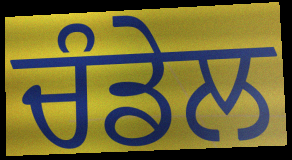
ਚੰਡੇਲ